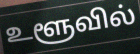
உளூவில்